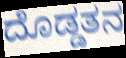
ದೊಡ್ಡತನ